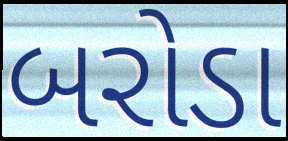
બરોડા